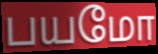
பயமோ